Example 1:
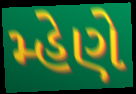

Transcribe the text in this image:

મ્હેણે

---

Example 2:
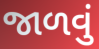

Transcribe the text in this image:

જાળવું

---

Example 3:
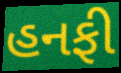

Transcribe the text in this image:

હનફી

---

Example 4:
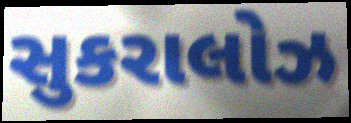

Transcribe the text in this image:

સુકરાલોઝ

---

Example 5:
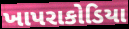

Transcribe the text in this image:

ખાપરાકોડિયા